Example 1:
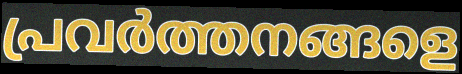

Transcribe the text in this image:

പ്രവർത്തനങ്ങളെ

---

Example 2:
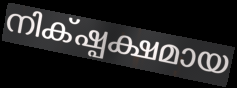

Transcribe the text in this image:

നിക്ഷ്പക്ഷമായ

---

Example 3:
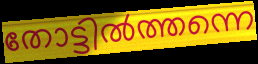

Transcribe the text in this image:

തോട്ടിൽത്തന്നെ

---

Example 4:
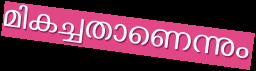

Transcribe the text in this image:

മികച്ചതാണെന്നും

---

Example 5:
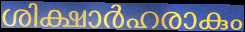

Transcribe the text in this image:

ശിക്ഷാർഹരാകും